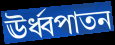
ঊর্ধ্বপাতন